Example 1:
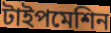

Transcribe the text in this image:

টাইপমেশিন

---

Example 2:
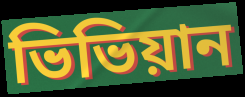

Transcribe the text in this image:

ভিভিয়ান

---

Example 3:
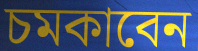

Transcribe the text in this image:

চমকাবেন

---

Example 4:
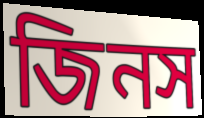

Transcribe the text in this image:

জিনস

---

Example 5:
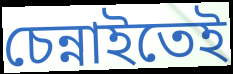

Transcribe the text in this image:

চেন্নাইতেই